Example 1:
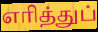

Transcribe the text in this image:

எரித்துப்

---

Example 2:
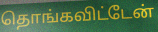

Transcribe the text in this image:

தொங்கவிட்டேன்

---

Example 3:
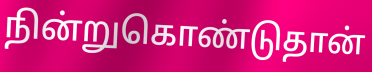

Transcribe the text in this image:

நின்றுகொண்டுதான்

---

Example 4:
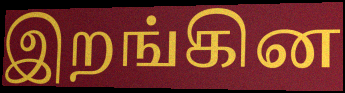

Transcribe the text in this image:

இறங்கின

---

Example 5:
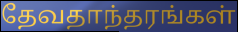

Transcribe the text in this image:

தேவதாந்தரங்கள்